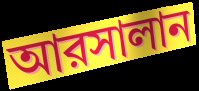
আরসালান